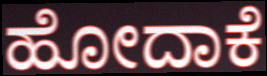
ಹೋದಾಕೆ